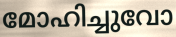
മോഹിച്ചുവോ